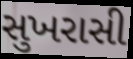
સુખરાસી